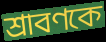
শ্রাবণকে